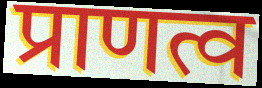
प्राणत्व